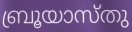
ബ്രൂയാസ്തു